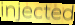
injected